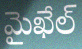
మైఖేల్